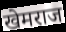
खेमराज